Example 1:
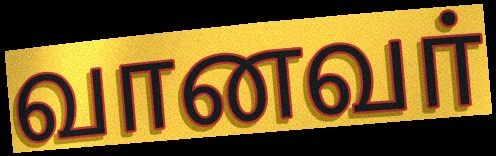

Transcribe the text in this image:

வானவர்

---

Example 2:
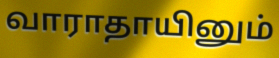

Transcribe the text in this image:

வாராதாயினும்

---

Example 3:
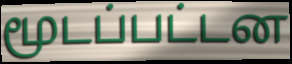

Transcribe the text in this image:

மூடப்பட்டன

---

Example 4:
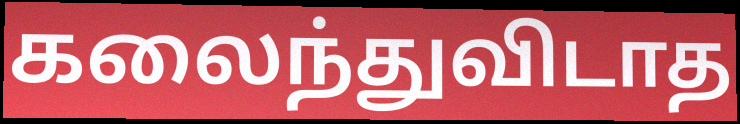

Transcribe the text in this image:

கலைந்துவிடாத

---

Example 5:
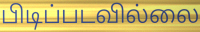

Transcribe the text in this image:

பிடிப்படவில்லை